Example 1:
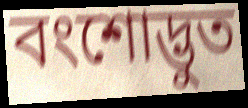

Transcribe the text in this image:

বংশোদ্ভুত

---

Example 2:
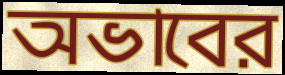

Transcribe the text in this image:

অভাবের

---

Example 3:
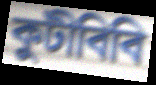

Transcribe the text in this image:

কুটীবিবি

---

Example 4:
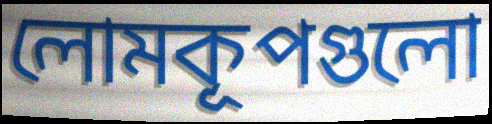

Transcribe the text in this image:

লোমকূপগুলো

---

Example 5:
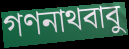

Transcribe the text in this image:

গণনাথবাবু